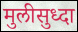
मुलीसुध्दा